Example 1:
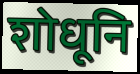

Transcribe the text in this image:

शोधूनि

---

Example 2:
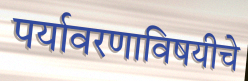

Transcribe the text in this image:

पर्यावरणाविषयीचे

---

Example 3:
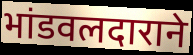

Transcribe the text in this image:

भांडवलदाराने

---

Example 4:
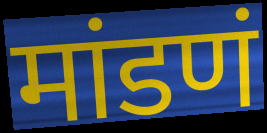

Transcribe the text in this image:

मांडणं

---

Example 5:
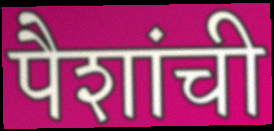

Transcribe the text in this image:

पैशांची